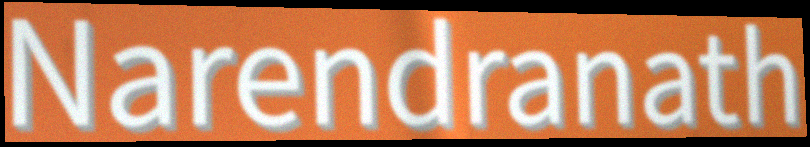
Narendranath